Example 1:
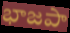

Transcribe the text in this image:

భాజపా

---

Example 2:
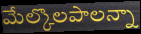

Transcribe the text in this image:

మేల్కొలపాలన్నా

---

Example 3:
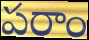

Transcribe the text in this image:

పరాం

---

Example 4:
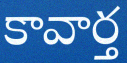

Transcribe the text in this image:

కావార్త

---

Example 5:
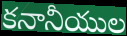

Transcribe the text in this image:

కనానీయుల